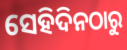
ସେହିଦିନଠାରୁ